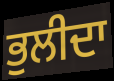
ਭੁਲੀਦਾ